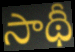
సాథీ